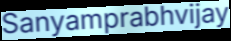
Sanyamprabhvijay